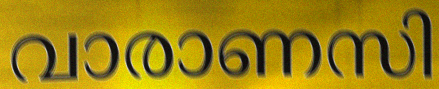
വാരാണസി